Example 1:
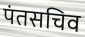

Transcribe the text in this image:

पंतसचिव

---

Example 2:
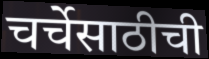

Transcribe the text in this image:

चर्चेसाठीची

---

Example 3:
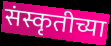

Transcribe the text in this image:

संस्कृतीच्या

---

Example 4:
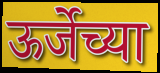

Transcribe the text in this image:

ऊर्जेच्या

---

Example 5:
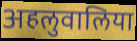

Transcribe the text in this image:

अहलुवालिया